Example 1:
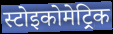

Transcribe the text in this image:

स्टोइकोमेट्रिक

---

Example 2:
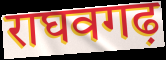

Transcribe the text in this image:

राघवगढ़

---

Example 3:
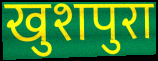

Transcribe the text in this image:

खुशपुरा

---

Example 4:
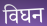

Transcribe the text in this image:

विघन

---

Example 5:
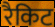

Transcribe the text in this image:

रैकिट